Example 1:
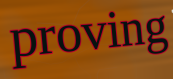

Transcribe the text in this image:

proving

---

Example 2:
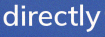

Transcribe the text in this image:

directly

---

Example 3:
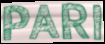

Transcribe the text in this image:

PARI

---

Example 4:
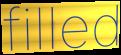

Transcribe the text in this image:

filled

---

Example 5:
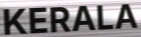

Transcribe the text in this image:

KERALA